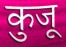
कुजू